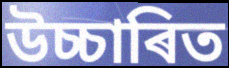
উচ্চাৰিত